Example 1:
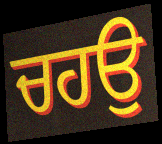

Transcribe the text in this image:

ਚਹਉ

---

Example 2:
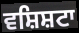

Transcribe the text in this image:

ਵਸ਼ਿਸ਼ਟਾ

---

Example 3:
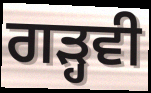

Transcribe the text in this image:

ਗੜ੍ਹਵੀ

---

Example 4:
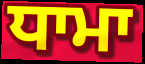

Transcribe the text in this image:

ਧਾਮਾ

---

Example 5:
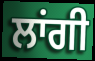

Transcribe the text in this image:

ਲਾਂਗੀ